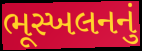
ભૂસ્ખલનનું